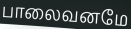
பாலைவனமே